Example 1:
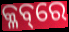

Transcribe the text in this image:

କ୍ଳବ୍‌ରେ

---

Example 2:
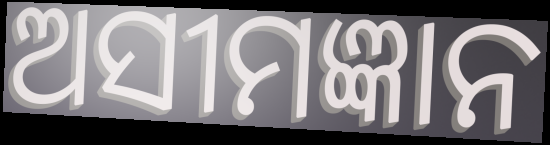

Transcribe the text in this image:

ଅସୀମଜ୍ଞାନ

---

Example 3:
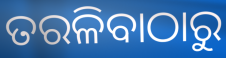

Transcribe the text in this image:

ତରଳିବାଠାରୁ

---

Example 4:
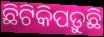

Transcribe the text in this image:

ଛିଟିକିପଡ଼ୁଛି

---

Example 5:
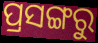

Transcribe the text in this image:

ପ୍ରସଙ୍ଗରୁ